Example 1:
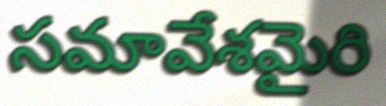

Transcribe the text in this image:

సమావేశమైరి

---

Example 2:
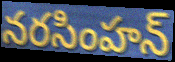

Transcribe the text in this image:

నరసింహన్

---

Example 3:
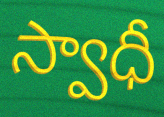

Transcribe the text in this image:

స్వాధీ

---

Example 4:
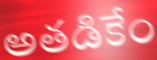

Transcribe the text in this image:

అతడికేం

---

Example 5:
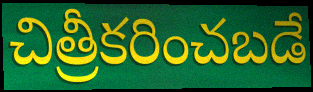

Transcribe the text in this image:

చిత్రీకరించబడే